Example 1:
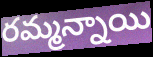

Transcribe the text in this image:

రమ్మన్నాయి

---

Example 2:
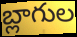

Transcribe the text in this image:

బ్లాగుల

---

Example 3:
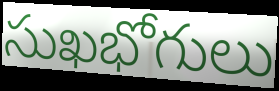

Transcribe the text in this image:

సుఖభోగులు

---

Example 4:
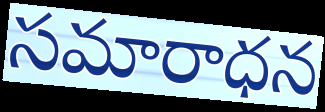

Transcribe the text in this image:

సమారాధన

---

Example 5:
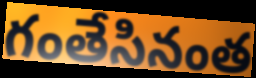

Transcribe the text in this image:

గంతేసినంత